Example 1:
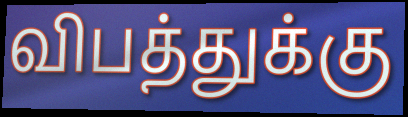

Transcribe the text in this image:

விபத்துக்கு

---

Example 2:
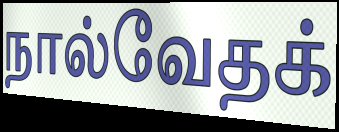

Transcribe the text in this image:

நால்வேதக்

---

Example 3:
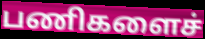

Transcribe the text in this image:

பணிகளைச்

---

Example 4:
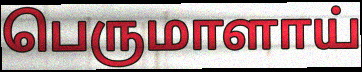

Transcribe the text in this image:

பெருமாளாய்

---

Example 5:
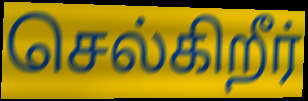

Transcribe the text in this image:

செல்கிறீர்